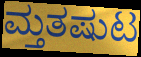
ಮ್ತತಷುಟ